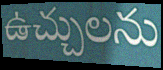
ఉచ్చులను